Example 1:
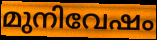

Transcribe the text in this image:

മുനിവേഷം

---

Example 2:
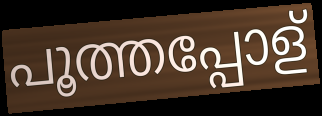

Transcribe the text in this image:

പൂത്തപ്പോള്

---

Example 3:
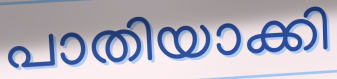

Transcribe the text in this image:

പാതിയാക്കി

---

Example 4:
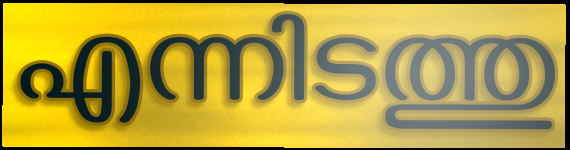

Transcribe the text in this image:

എന്നിടത്തു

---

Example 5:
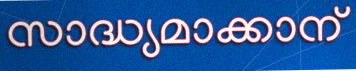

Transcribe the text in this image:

സാദ്ധ്യമാക്കാന്